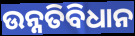
ଉନ୍ନତିବିଧାନ